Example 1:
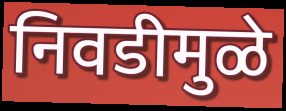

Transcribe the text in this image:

निवडीमुळे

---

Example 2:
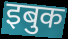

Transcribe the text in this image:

इबुक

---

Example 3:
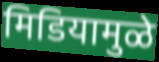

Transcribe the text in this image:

मिडियामुळे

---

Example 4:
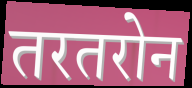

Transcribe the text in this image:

तरतरोन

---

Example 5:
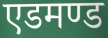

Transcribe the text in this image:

एडमण्ड